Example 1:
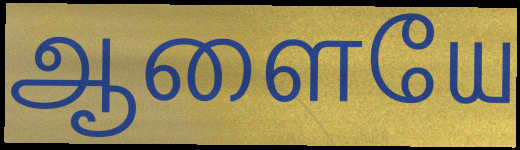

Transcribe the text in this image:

ஆளையே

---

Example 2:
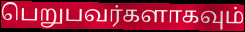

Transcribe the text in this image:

பெறுபவர்களாகவும்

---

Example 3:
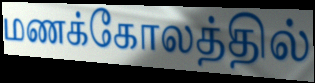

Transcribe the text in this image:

மணக்கோலத்தில்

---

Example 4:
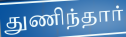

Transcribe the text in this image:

துணிந்தார்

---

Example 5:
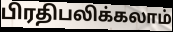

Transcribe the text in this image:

பிரதிபலிக்கலாம்